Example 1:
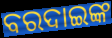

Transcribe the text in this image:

ବରଦାଇଙ୍କ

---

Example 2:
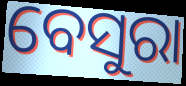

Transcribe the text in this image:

ବେସୁରା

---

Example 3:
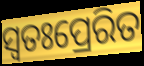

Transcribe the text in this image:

ସ୍ୱତଃପ୍ରେରିତ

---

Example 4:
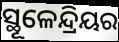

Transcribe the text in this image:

ସ୍ଥୂଳେନ୍ଦ୍ରିୟର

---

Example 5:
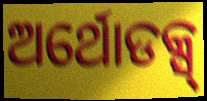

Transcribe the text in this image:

ଅର୍ଥୋଡକ୍ସ୍